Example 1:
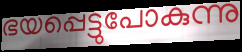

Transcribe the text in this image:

ഭയപ്പെട്ടുപോകുന്നു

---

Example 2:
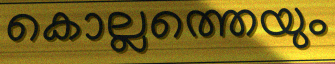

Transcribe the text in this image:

കൊല്ലത്തെയും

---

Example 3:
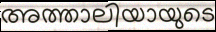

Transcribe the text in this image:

അത്താലിയായുടെ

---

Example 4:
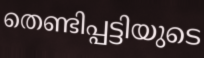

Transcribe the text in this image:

തെണ്ടിപ്പട്ടിയുടെ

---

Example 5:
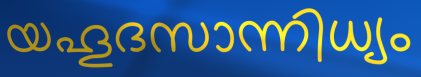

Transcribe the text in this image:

യഹൂദസാന്നിധ്യം